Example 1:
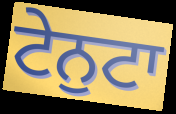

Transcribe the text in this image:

ਟੇਨੁਟਾ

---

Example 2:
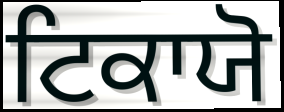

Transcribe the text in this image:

ਟਿਕਾਯੋ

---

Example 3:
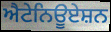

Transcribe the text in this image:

ਐਟੇਨਿਊਏਸ਼ਨ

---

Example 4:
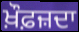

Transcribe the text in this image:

ਖ਼ੌਫ਼ਜ਼ਦਾ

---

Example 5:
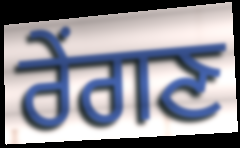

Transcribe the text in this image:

ਰੇਂਗਣ